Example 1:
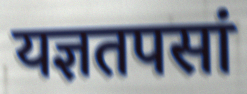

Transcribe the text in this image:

यज्ञतपसां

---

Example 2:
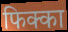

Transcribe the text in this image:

फिक्का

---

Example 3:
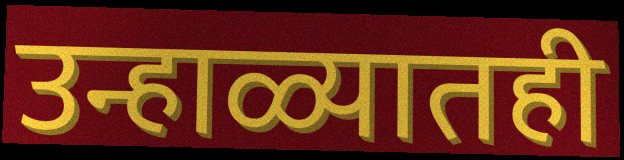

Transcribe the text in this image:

उन्हाळ्यातही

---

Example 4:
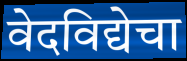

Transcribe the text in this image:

वेदविद्येचा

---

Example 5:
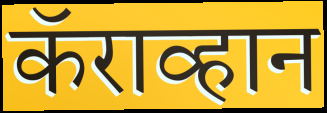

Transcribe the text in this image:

कॅराव्हान